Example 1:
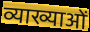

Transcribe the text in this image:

व्याख्याओं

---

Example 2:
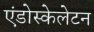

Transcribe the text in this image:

एंडोस्केलेटन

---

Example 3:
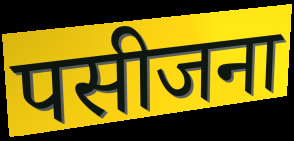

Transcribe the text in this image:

पसीजना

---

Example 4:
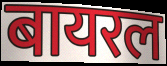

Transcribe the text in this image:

बायरल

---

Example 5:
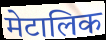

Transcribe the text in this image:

मेटालिक